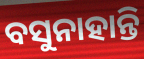
ବସୁନାହାନ୍ତି